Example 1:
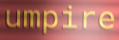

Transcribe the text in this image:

umpire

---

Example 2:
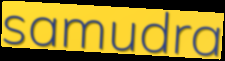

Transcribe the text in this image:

samudra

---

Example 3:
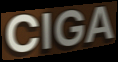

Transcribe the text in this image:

CIGA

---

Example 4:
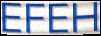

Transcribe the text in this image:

EFEH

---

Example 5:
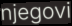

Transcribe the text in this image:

njegovi